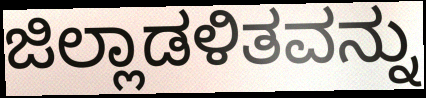
ಜಿಲ್ಲಾಡಳಿತವನ್ನು